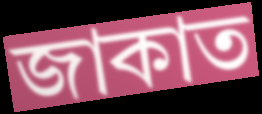
জাকাত